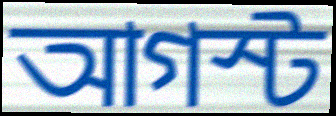
আগস্ট